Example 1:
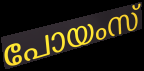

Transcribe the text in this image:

പോയംസ്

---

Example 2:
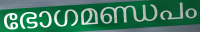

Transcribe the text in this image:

ഭോഗമണ്ഡപം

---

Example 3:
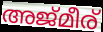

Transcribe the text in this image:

അജ്മീര്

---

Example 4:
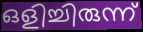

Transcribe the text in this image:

ഒളിച്ചിരുന്ന്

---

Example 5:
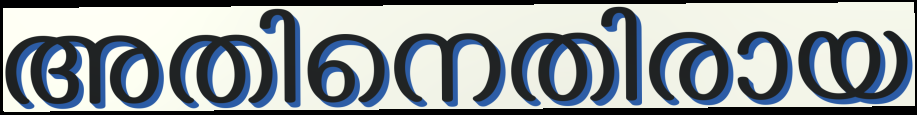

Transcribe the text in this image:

അതിനെതിരായ